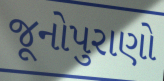
જૂનોપુરાણો